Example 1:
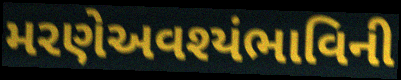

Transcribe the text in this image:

મરણેઅવશ્યંભાવિની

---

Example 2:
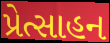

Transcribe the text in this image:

પ્રેત્સાહન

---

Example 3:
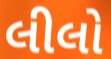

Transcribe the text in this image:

લીલો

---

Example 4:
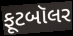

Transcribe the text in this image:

ફૂટબૉલર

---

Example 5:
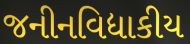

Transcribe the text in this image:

જનીનવિદ્યાકીય